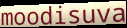
moodisuva